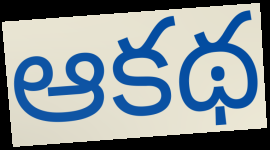
ఆకథ